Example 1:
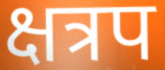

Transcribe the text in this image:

क्षत्रप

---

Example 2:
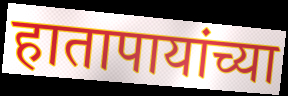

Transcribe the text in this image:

हातापायांच्या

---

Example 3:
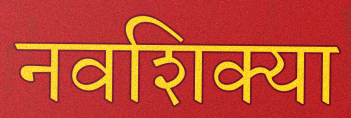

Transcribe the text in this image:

नवशिक्या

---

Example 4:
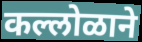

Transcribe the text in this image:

कल्लोळाने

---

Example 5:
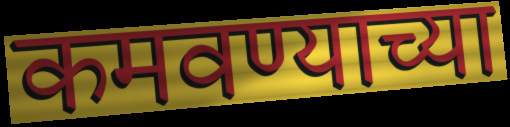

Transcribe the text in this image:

कमवण्याच्या